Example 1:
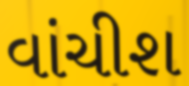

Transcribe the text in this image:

વાંચીશ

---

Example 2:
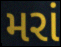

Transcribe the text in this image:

મરાં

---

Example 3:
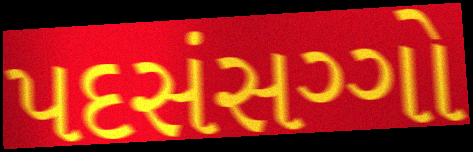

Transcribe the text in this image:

પદસંસગ્ગો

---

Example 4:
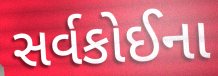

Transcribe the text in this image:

સર્વકોઈના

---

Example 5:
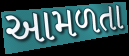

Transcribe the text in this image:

આમળતા